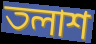
তলাশ